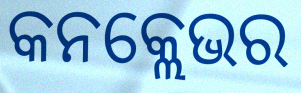
କନକ୍ଲେଭର